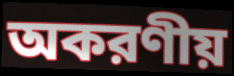
অকরণীয়